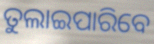
ତୁଲାଇପାରିବେ